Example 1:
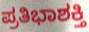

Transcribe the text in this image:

ಪ್ರತಿಭಾಶಕ್ತಿ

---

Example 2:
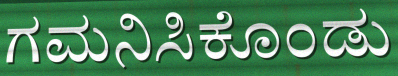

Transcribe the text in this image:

ಗಮನಿಸಿಕೊಂಡು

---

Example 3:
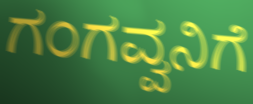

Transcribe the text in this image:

ಗಂಗವ್ವನಿಗೆ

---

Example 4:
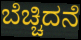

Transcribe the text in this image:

ಬೆಚ್ಚಿದನೆ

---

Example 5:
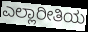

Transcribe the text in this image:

ಎಲ್ಲಾರೀತಿಯ